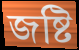
জষ্টি